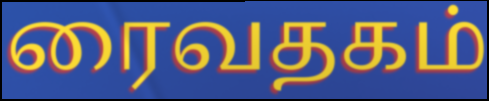
ரைவதகம்